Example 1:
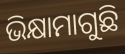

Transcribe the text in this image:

ଭିକ୍ଷାମାଗୁଛି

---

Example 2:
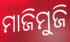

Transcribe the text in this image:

ମାଜିମୁଜି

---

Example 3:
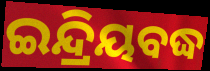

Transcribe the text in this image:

ଇନ୍ଦ୍ରିୟବଦ୍ଧ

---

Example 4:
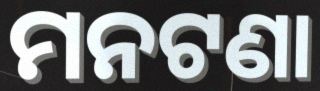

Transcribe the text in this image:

ମନଟଣା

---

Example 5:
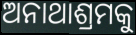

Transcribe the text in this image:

ଅନାଥାଶ୍ରମକୁ